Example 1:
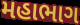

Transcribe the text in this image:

મહાભાગ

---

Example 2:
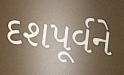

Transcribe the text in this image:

દશપૂર્વને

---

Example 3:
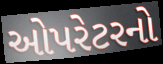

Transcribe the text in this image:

ઓપરેટરનો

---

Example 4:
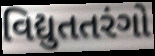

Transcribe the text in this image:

વિદ્યુતતરંગો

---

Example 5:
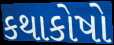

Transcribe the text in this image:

કથાકોષો